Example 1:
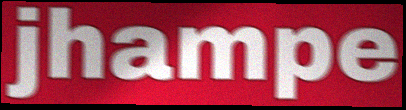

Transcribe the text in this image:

jhampe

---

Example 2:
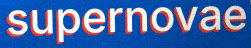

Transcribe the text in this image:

supernovae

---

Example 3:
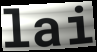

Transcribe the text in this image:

lai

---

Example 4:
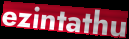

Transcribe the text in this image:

ezintathu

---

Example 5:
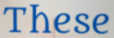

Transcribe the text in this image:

These